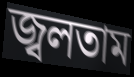
জ্বলতাম